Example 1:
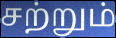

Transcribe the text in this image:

சற்றும்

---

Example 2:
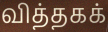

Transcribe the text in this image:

வித்தகக்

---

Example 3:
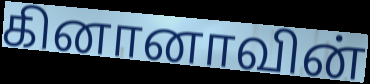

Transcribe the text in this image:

கினானாவின்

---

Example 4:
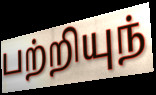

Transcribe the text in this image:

பற்றியுந்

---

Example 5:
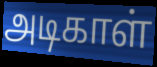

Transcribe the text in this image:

அடிகாள்